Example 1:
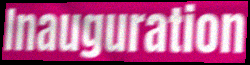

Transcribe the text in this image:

Inauguration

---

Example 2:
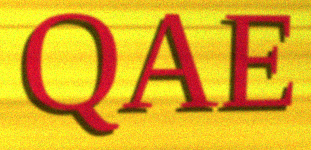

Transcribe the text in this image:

QAE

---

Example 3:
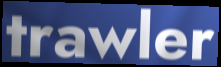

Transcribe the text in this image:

trawler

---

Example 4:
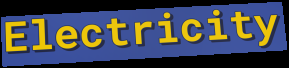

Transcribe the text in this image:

Electricity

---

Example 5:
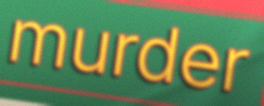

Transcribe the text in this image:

murder